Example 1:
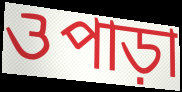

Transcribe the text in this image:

ওপাড়া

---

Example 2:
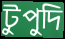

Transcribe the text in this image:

টুপুদি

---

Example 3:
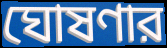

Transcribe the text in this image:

ঘোষণার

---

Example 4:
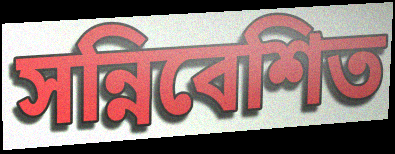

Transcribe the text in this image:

সন্নিবেশিত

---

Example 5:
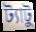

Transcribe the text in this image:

ট্যাটু